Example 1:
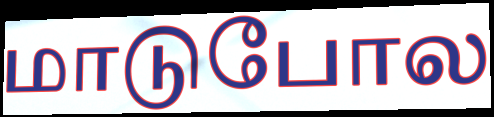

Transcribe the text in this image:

மாடுபோல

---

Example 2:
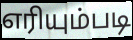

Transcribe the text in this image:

எரியும்படி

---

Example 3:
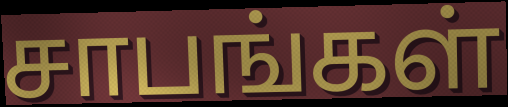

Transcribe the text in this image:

சாபங்கள்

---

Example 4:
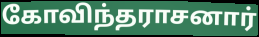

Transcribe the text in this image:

கோவிந்தராசனார்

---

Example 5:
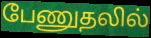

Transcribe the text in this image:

பேணுதலில்